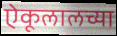
ऐकूलालच्या